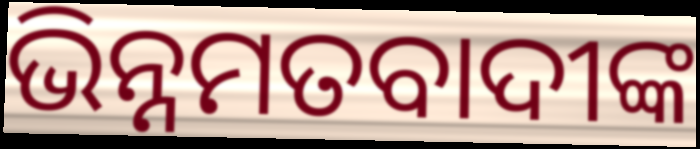
ଭିନ୍ନମତବାଦୀଙ୍କ